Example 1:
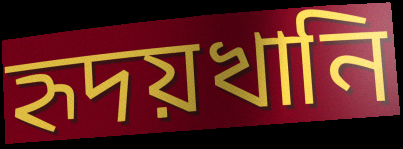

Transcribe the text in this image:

হৃদয়খানি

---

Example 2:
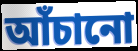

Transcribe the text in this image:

আঁচানো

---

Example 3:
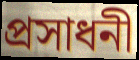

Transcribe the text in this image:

প্রসাধনী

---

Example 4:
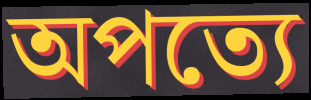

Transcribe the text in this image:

অপত্যে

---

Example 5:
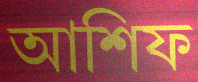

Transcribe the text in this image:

আশিফ